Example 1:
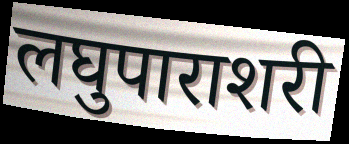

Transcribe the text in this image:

लघुपाराशरी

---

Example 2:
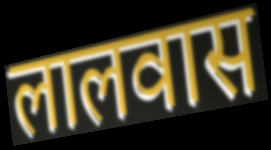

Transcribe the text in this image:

लालवास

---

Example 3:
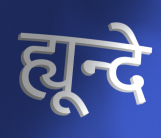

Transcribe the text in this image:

ह्यून्दे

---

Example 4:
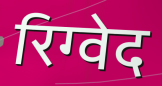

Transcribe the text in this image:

रिग्वेद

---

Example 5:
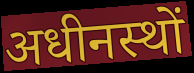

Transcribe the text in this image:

अधीनस्थों